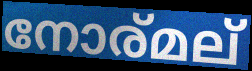
നോര്മല്